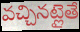
వచ్చినట్లైతే